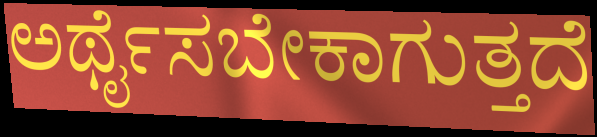
ಅರ್ಥೈಸಬೇಕಾಗುತ್ತದೆ